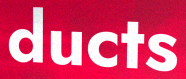
ducts